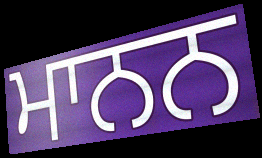
ਮਾਨਨ